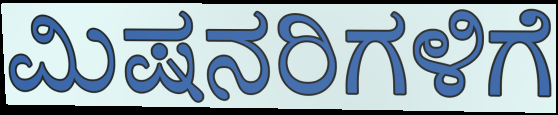
ಮಿಷನರಿಗಳಿಗೆ